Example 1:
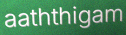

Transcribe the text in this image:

aaththigam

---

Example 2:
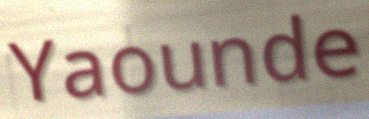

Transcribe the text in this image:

Yaounde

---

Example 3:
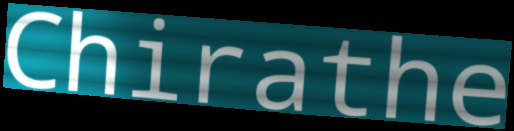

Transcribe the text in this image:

Chirathe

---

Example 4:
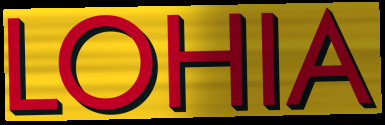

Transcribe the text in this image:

LOHIA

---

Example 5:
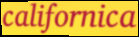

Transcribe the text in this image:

californica